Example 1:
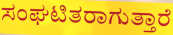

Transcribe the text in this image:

ಸಂಘಟಿತರಾಗುತ್ತಾರೆ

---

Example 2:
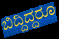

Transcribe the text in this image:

ಬಿದ್ದಿದ್ದರೂ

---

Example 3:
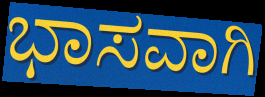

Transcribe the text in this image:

ಭಾಸವಾಗಿ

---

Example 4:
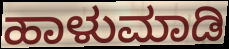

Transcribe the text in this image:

ಹಾಳುಮಾಡಿ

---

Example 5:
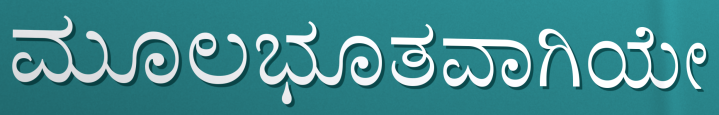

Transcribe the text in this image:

ಮೂಲಭೂತವಾಗಿಯೇ